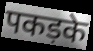
पकड़के